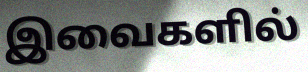
இவைகளில்